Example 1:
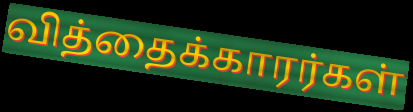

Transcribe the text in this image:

வித்தைக்காரர்கள்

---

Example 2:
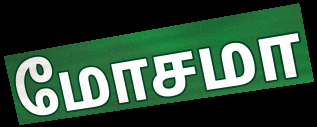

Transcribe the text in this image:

மோசமா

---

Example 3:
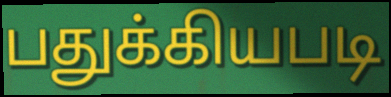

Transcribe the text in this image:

பதுக்கியபடி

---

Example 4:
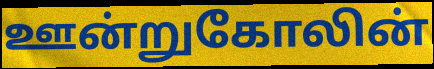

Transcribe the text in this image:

ஊன்றுகோலின்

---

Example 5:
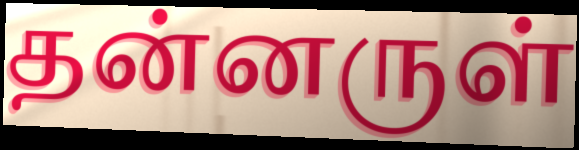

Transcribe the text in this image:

தன்னருள்